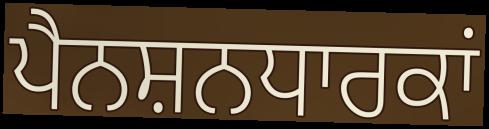
ਪੈਨਸ਼ਨਧਾਰਕਾਂ